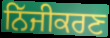
ਨਿੱਜੀਕਰਣ